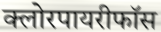
क्लोरपायरीफॉस